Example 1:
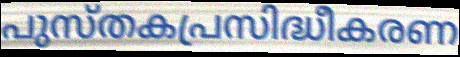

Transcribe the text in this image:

പുസ്തകപ്രസിദ്ധീകരണ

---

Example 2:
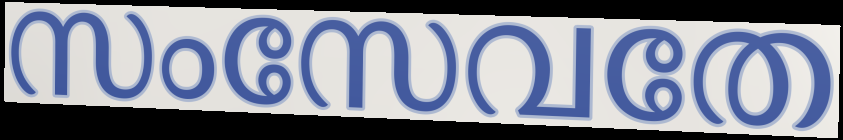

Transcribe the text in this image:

സംസേവതേ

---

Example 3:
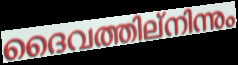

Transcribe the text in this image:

ദൈവത്തില്നിന്നും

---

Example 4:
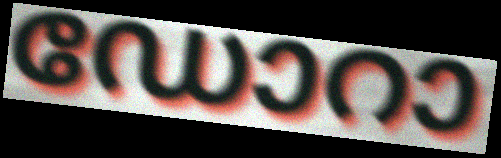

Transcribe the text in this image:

ഡോറാ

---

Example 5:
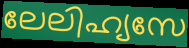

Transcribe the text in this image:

ലേലിഹ്യസേ